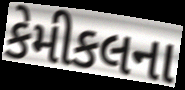
કેમીકલના